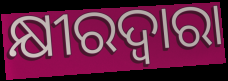
କ୍ଷୀରଦ୍ଵାରା